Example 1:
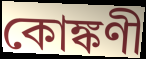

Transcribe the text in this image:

কোঙ্কণী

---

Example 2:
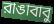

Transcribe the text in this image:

রাঙাবাবু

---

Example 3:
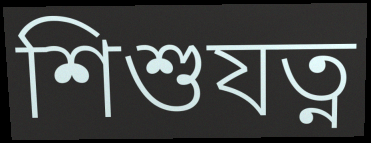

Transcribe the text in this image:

শিশুযত্ন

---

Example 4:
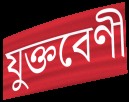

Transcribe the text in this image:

যুক্তবেণী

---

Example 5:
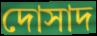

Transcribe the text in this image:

দোসাদ